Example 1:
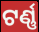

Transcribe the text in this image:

ଟର୍ଣ୍ଣ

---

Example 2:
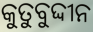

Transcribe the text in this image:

କୁତୁବୁଦ୍ଦୀନ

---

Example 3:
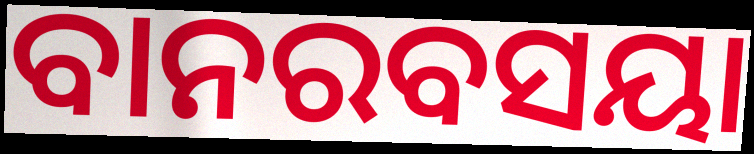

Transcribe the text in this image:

ବାନରବସୟା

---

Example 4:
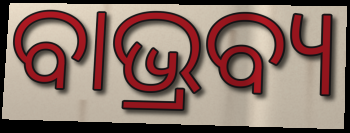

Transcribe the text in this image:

ବାଭ୍ରବ୍ୟ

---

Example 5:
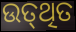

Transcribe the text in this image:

ଉତ୍‌ଥିତ